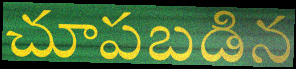
చూపబడిన